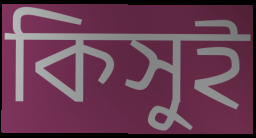
কিসুই